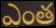
ఎంత